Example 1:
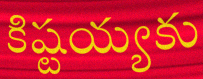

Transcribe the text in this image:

కిష్టయ్యకు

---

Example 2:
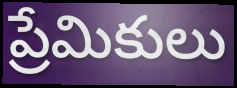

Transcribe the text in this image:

ప్రేమికులు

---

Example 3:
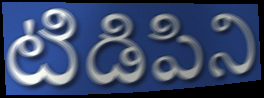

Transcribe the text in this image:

టిడిపిని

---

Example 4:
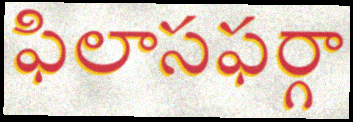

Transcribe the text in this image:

ఫిలాసఫర్గా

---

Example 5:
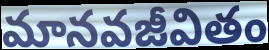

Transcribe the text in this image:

మానవజీవితం